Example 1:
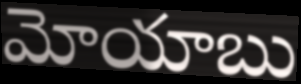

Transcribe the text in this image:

మోయాబు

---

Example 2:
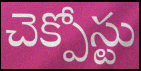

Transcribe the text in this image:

చెక్పోస్టు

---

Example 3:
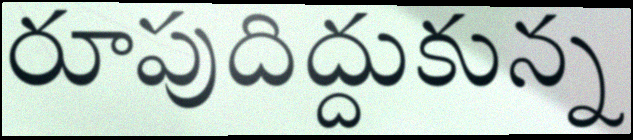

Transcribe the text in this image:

రూపుదిద్దుకున్న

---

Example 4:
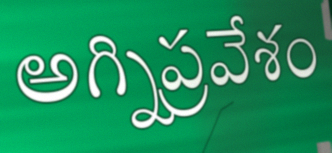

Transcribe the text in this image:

అగ్నిప్రవేశం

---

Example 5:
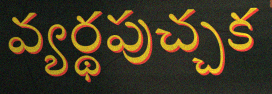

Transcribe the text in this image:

వ్యర్థపుచ్చక